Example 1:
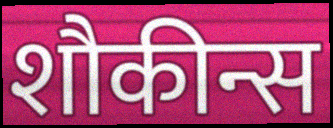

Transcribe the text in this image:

शौकीन्स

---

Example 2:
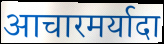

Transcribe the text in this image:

आचारमर्यादा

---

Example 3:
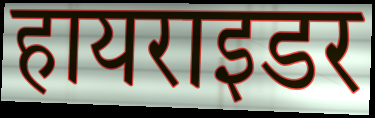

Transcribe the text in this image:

हायराइडर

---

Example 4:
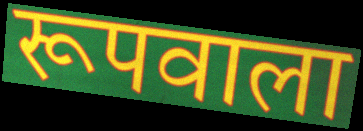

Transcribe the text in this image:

रूपवाला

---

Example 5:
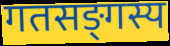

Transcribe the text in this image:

गतसङ्गस्य